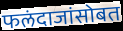
फलंदाजांसोबत